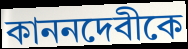
কাননদেবীকে